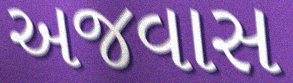
અજવાસ